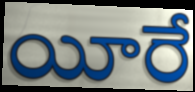
యీరే